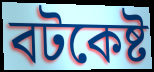
বটকেষ্ট